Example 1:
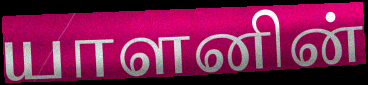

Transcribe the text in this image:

யாளனின்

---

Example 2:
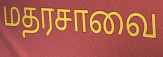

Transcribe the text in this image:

மதரசாவை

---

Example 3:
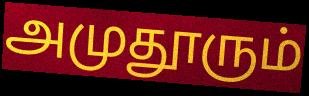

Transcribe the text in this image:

அமுதூரும்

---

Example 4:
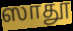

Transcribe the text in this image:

ஸாதூ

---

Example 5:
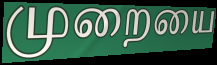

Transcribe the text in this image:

முறையை